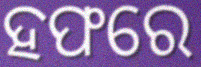
ହଫରେ